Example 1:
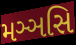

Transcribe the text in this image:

મઞ્ઞસિ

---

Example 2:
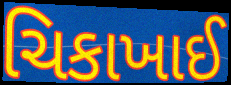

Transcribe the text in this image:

ચિકાખાઈ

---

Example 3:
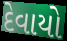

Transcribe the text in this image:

દેવાયો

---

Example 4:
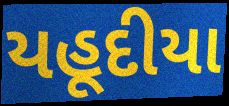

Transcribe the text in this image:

યહૂદીયા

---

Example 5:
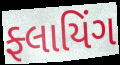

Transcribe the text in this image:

ફ્લાયિંગ